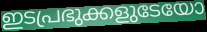
ഇടപ്രഭുക്കളുടേയോ